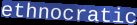
ethnocratic